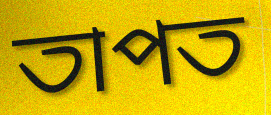
তাপত